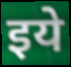
इये